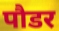
पौडर